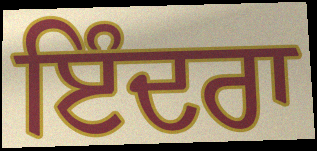
ਇੰਦਰਾ